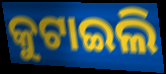
କୁଟାଇଲି